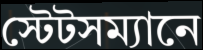
স্টেটসম্যানে